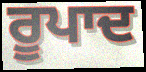
ਰੂਪਾਦ